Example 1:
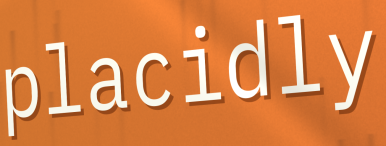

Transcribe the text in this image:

placidly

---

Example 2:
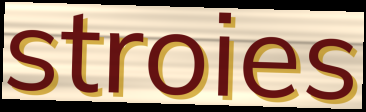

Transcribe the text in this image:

stroies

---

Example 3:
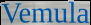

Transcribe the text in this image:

Vemula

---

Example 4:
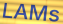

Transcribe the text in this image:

LAMs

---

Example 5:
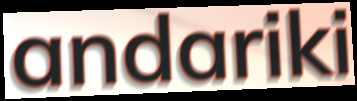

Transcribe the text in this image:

andariki